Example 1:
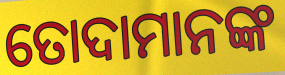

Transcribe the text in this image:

ତୋଦାମାନଙ୍କ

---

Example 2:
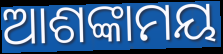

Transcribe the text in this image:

ଆଶଙ୍କାମୟ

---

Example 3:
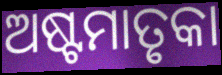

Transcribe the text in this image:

ଅଷ୍ଟମାତୃକା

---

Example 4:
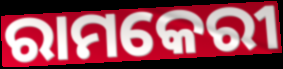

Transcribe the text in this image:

ରାମକେରୀ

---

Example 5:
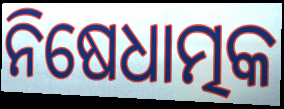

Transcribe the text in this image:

ନିଷେଧାତ୍ମକ